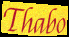
Thabo